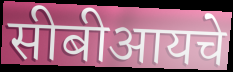
सीबीआयचे